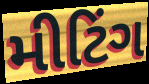
મીટિંગ